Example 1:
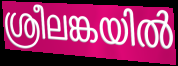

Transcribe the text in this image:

ശ്രീലങ്കയിൽ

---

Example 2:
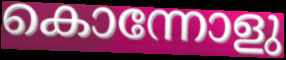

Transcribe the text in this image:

കൊന്നോളു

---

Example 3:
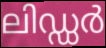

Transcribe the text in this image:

ലിഡ്ഡർ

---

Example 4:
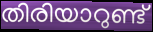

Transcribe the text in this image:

തിരിയാറുണ്ട്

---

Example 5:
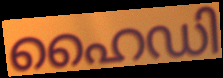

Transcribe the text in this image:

ഹൈഡി